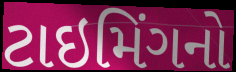
ટાઇમિંગનો